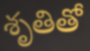
శృతితో